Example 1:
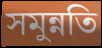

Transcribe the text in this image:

সমুন্নতি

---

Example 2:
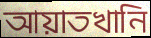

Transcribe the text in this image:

আয়াতখানি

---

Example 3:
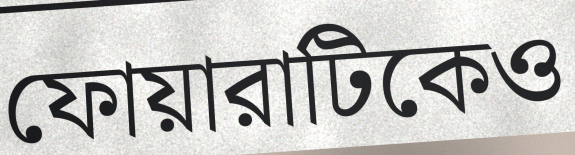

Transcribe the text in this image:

ফোয়ারাটিকেও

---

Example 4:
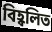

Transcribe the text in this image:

বিহ্বলিত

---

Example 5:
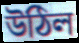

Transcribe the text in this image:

উঠিল